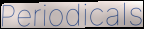
Periodicals